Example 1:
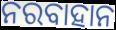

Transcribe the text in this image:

ନରବାହାନ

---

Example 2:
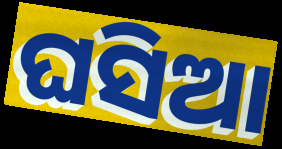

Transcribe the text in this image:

ଘସିଆ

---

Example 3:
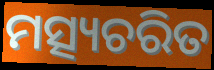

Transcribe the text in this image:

ମତ୍ସ୍ୟଚରିତ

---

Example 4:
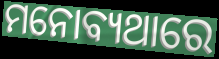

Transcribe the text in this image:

ମନୋବ୍ୟଥାରେ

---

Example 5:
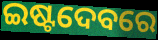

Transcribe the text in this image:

ଇଷ୍ଟଦେବରେ